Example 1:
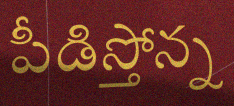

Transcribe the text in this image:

పీడిస్తోన్న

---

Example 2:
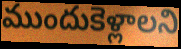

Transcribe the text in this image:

ముందుకెళ్లాలని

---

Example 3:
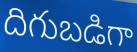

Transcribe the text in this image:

దిగుబడిగా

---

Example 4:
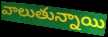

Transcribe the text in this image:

వాలుతున్నాయి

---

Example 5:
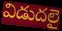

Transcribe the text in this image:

విడుదలై